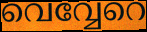
വെവ്വേറെ